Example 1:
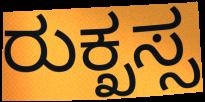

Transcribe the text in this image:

ರುಕ್ಖಸ್ಸ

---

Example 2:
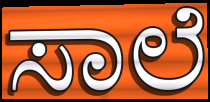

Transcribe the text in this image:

ಸಾಲೆ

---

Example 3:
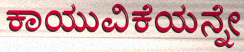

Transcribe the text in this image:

ಕಾಯುವಿಕೆಯನ್ನೇ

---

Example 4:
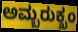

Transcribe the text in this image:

ಅಮ್ಬರುಕ್ಖಂ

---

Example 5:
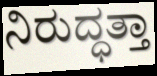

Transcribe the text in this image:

ನಿರುದ್ಧತ್ತಾ